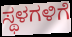
ಸ್ಥಳಗಳಿಗೆ